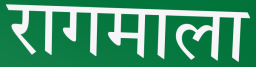
रागमाला